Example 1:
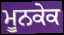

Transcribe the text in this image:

ਮੂਨਕੇਕ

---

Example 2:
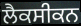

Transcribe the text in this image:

ਲੈਕਸੀਕਨ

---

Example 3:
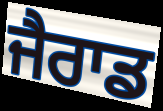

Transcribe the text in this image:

ਜੈਰਾਡ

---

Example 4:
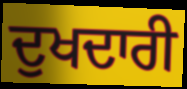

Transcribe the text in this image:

ਦੁਖਦਾਰੀ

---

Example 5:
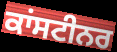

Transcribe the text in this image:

ਕਾਂਸਟੀਨਰ